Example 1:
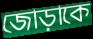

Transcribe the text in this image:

জোড়াকে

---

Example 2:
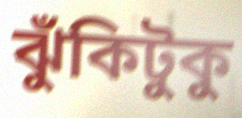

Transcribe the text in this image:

ঝুঁকিটুকু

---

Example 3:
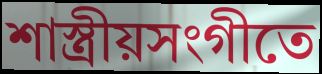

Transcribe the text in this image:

শাস্ত্রীয়সংগীতে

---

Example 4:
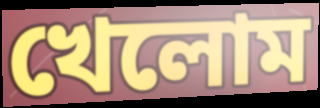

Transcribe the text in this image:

খেলোম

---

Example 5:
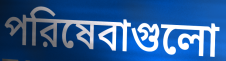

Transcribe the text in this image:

পরিষেবাগুলো